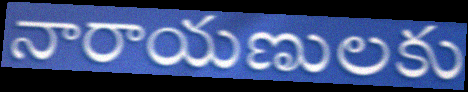
నారాయణులకు